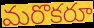
మరొకరూ